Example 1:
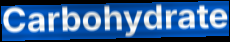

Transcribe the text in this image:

Carbohydrate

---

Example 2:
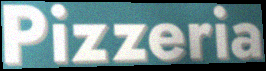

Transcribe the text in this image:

Pizzeria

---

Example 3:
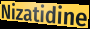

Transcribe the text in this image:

Nizatidine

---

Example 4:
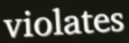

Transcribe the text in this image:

violates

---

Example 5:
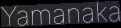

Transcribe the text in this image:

Yamanaka